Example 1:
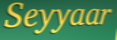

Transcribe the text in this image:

Seyyaar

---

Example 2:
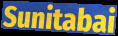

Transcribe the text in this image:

Sunitabai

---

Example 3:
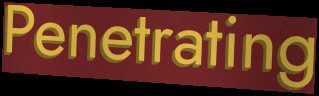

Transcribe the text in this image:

Penetrating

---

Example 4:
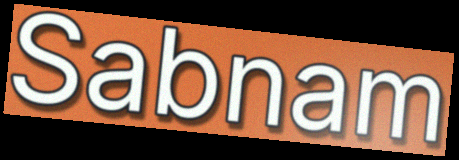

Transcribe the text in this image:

Sabnam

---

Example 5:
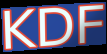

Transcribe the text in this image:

KDF